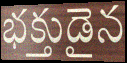
భక్తుడైన